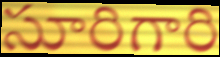
సూరిగారి